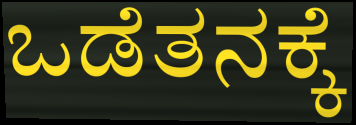
ಒಡೆತನಕ್ಕೆ